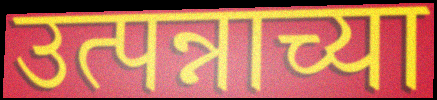
उत्पन्नाच्या